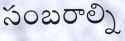
సంబరాల్ని